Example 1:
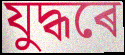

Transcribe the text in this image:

যুদ্ধৰে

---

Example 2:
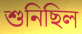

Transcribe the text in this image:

শুনিছিল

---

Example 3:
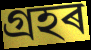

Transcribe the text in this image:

গ্ৰহৰ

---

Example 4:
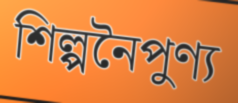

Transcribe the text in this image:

শিল্পনৈপুণ্য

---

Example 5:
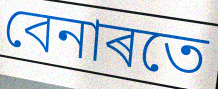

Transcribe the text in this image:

বেনাৰতে